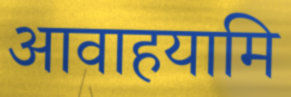
आवाहयामि